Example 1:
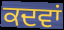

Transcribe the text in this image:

ਕਦਵਾਂ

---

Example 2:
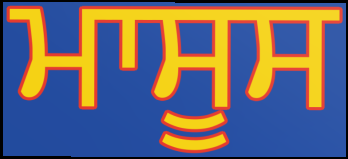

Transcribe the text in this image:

ਮਾਸੂਸ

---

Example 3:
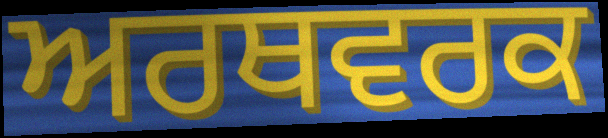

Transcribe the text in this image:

ਅਰਥਵਰਕ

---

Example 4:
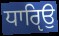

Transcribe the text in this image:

ਧਾਰੵਿਉ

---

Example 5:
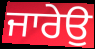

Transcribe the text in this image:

ਜਾਰੇਉ